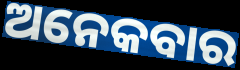
ଅନେକବାର